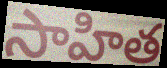
సాహిత